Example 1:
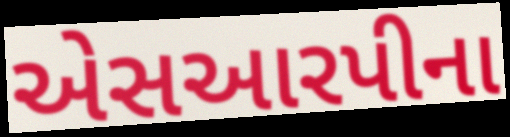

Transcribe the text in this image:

એસઆરપીના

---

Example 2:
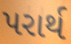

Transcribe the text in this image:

પરાર્થ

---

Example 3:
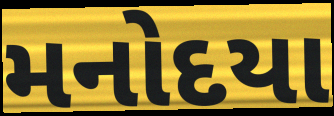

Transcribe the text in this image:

મનોદયા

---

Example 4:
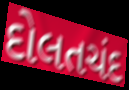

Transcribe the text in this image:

દોલતચંદ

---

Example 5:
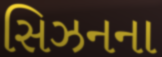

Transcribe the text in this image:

સિઝનના